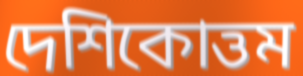
দেশিকোত্তম